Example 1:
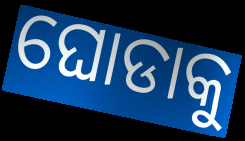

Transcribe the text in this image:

ଘୋଡାକୁ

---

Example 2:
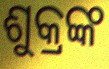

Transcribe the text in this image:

ଶୁକ୍ରଙ୍କ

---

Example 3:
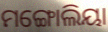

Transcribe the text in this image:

ମଙ୍ଗୋଲିୟା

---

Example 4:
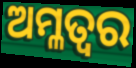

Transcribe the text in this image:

ଅମ୍ଳତ୍ଵର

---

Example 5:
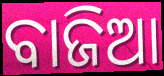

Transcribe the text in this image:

ବାଜିଆ